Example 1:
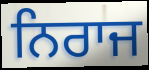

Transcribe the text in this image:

ਨਿਰਾਜ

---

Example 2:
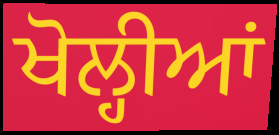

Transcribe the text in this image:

ਖੋਲ੍ਹੀਆਂ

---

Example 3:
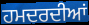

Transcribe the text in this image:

ਹਮਦਰਦੀਆਂ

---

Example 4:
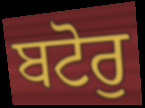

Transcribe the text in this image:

ਬਟੋਰੁ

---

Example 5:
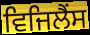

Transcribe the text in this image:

ਵਿਜਿਲੈਂਸ